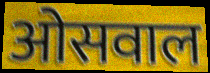
ओसवाल